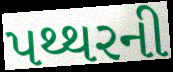
પથ્થરની